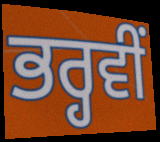
ਭਰ੍ਹਵੀਂ